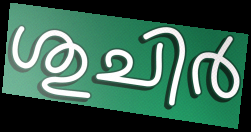
ശുചിർ